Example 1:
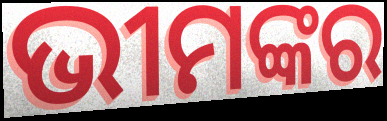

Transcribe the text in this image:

ଭୀମଙ୍କର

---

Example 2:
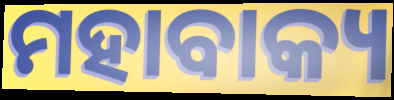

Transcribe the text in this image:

ମହାବାକ୍ୟ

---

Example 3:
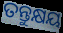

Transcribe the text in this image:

ତନ୍ତୁକ୍ଷୟ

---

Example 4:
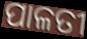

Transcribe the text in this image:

ପାଳତୀ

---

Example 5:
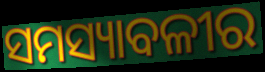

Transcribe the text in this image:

ସମସ୍ୟାବଳୀର